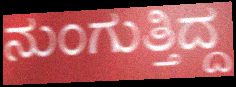
ನುಂಗುತ್ತಿದ್ದ